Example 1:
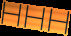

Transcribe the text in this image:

HHH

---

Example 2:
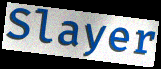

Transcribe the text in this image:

Slayer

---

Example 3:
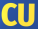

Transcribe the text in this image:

CU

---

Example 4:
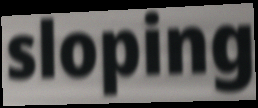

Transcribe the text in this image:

sloping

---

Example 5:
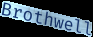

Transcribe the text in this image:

Brothwell